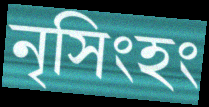
নৃসিংহং